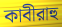
কাবীরাহু